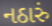
નઠારું